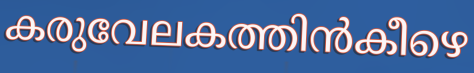
കരുവേലകത്തിൻകീഴെ